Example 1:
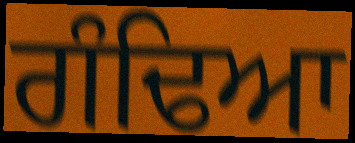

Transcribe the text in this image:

ਗੰਢਿਆ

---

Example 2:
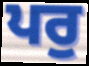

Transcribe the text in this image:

ਪਰੁ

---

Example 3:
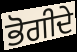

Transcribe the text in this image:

ਭੋਗੀਦੇ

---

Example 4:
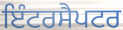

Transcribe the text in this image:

ਇੰਟਰਸੈਪਟਰ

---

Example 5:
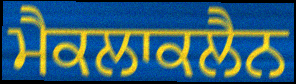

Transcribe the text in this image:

ਮੈਕਲਾਕਲੈਨ